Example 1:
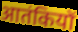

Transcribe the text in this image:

आतंकियों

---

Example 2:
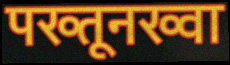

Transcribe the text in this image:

पख्तूनख्वा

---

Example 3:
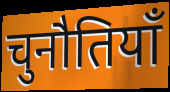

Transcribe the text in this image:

चुनौतियॉं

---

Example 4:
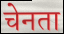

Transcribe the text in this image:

चेनता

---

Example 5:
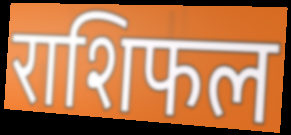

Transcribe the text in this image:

राशिफल